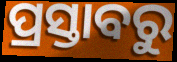
ପ୍ରସ୍ତାବରୁ